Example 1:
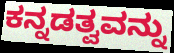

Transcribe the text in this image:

ಕನ್ನಡತ್ವವನ್ನು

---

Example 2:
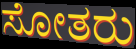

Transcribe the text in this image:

ಸೋತರು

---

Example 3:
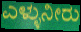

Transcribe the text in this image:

ಎಳ್ಳುನೀರು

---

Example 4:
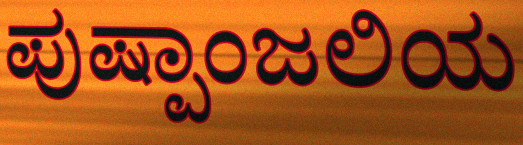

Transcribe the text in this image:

ಪುಷ್ಪಾಂಜಲಿಯ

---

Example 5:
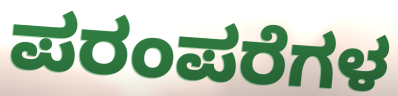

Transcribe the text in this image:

ಪರಂಪರೆಗಳ